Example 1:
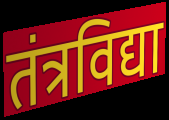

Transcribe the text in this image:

तंत्रविद्या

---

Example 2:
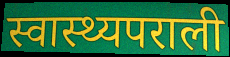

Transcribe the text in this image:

स्वास्थ्यपराली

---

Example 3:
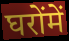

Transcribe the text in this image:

घरोंमें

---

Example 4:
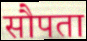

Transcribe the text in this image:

सौपता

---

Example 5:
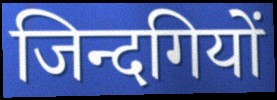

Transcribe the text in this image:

जिन्दगियों